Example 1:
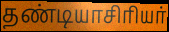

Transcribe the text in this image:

தண்டியாசிரியர்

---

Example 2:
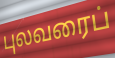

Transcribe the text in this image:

புலவரைப்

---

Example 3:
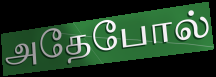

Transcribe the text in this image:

அதேபோல்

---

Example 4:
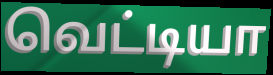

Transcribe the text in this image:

வெட்டியா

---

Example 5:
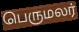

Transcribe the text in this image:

பெருமலர்